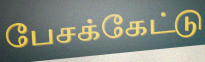
பேசக்கேட்டு